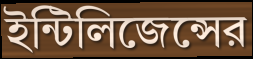
ইন্টিলিজেন্সের